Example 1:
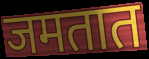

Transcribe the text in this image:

जमतात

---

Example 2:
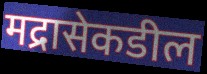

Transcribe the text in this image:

मद्रासेकडील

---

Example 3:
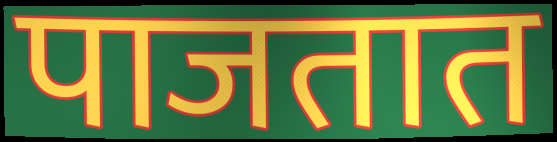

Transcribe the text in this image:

पाजतात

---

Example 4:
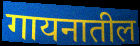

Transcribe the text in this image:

गायनातील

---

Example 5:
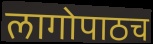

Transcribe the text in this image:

लागोपाठच